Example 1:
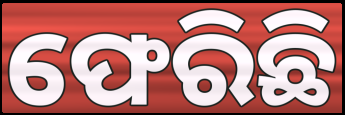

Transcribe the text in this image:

ଫେରିଛି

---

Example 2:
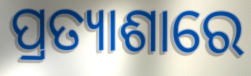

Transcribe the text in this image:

ପ୍ରତ୍ୟାଶାରେ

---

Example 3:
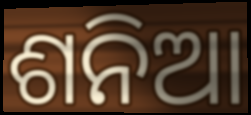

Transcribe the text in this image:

ଶନିଆ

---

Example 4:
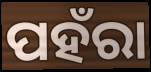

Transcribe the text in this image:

ପହଁରା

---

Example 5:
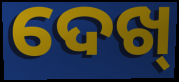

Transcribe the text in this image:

ଦେଖ୍